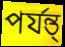
পর্যন্ত্